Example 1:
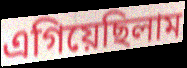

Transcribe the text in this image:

এগিয়েছিলাম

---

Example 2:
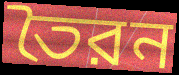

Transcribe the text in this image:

তৈরন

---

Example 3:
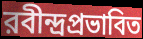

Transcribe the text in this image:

রবীন্দ্রপ্রভাবিত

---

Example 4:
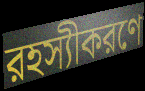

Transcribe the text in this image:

রহস্যীকরণে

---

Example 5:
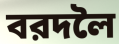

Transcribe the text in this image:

বরদলৈ